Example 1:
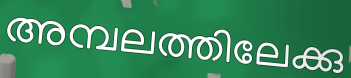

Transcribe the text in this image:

അമ്പലത്തിലേക്കു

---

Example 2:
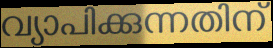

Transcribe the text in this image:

വ്യാപിക്കുന്നതിന്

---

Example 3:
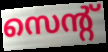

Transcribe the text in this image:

സെന്റ്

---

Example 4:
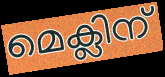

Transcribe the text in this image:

മെക്ലിന്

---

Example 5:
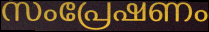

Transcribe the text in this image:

സംപ്രേഷണം